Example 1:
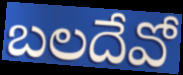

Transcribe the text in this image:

బలదేవో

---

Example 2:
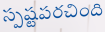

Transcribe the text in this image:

స్పష్టపరచింది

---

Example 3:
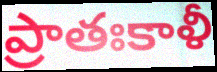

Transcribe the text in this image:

ప్రాతఃకాళీ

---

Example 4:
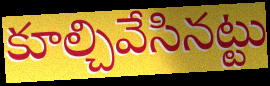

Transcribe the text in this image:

కూల్చివేసినట్టు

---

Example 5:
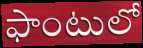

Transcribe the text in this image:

ఫాంటులో